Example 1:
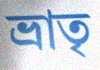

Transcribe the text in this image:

ভ্ৰাতৃ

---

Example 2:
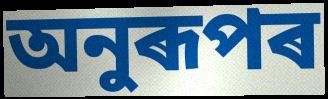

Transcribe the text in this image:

অনুৰূপৰ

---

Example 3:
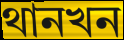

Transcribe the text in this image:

থানখন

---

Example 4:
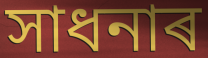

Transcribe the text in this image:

সাধনাৰ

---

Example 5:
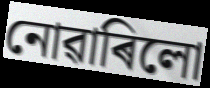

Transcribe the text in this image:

নোৱাৰিলো